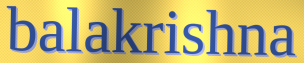
balakrishna